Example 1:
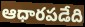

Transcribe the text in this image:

ఆధారపడేది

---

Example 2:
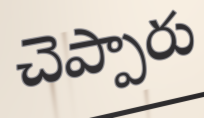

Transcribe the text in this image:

చెప్పారు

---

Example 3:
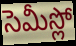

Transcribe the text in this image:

సెమీస్లో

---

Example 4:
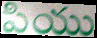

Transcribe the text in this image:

పియు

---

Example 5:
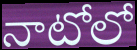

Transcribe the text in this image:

నాటోలో